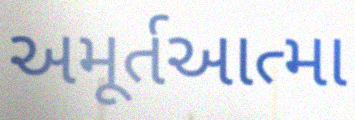
અમૂર્તઆત્મા